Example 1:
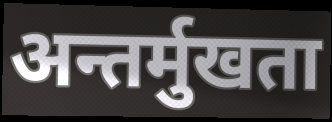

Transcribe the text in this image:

अन्तर्मुखता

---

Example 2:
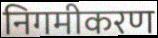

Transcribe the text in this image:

निगमीकरण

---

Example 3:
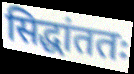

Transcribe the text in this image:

सिद्धांततः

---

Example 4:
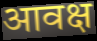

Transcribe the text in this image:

आवक्ष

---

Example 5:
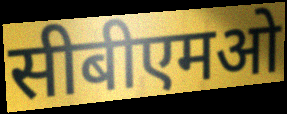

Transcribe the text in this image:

सीबीएमओ